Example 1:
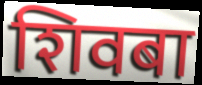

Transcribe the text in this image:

शिवबा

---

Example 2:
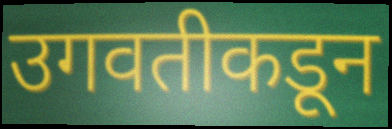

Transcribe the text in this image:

उगवतीकडून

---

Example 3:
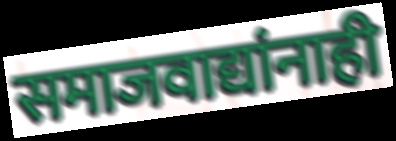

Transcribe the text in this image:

समाजवाद्यांनाही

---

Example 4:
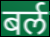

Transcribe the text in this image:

बर्ल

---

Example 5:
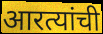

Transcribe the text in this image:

आरत्यांची